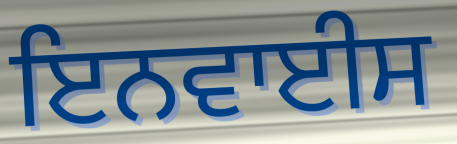
ਇਨਵਾਈਸ